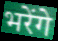
भरेंगे